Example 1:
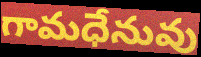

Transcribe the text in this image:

గామధేనువు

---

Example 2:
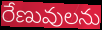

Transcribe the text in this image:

రేణువులను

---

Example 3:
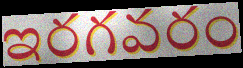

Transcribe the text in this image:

ఇరగవరం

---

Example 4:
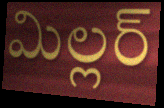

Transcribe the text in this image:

మిల్లర్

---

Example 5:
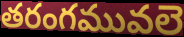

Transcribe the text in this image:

తరంగమువలె